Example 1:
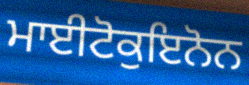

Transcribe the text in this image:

ਮਾਈਟੋਕੁਇਨੋਨ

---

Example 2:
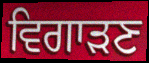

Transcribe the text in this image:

ਵਿਗਾੜਣ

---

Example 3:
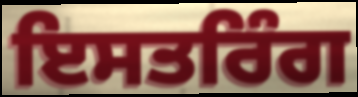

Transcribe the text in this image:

ਇਸਤਰਿੰਗ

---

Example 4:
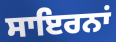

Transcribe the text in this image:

ਸਾਇਰਨਾਂ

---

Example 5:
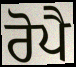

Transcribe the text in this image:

ਰੋਪੈ